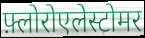
फ़्लोरोएलेस्टोमर